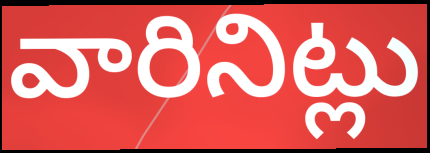
వారినిట్లు